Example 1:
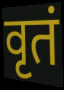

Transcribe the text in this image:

वृतं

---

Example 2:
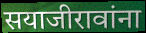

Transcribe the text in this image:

सयाजीरावांना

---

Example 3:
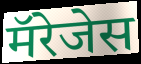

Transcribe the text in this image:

मॅरेजेस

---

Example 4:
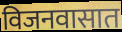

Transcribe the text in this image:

विजनवासात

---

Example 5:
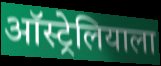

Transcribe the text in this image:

ऑस्ट्रेलियाला